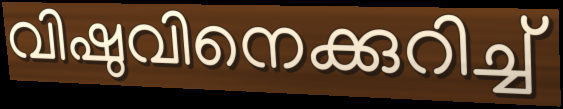
വിഷുവിനെക്കുറിച്ച്